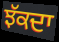
ਝੱਕਦਾ